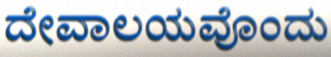
ದೇವಾಲಯವೊಂದು